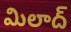
మిలాద్